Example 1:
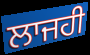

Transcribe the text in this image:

ਲਾਜਹੀ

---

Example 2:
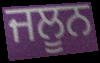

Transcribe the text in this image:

ਜਲੂਨ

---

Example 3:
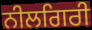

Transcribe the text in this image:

ਨੀਲਗਿਰੀ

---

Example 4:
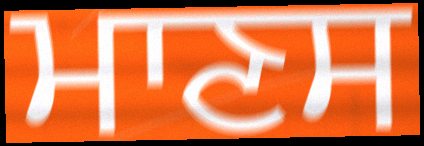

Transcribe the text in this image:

ਮਾਣਸ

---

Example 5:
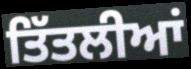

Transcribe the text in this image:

ਤਿੱਤਲੀਆਂ